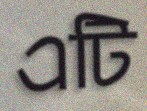
এটি